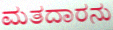
ಮತದಾರನು